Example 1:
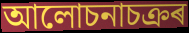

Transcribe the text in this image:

আলোচনাচক্ৰৰ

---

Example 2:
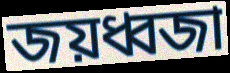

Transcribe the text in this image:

জয়ধ্বজা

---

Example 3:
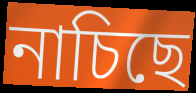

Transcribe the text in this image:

নাচিছে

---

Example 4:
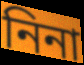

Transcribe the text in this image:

নিনা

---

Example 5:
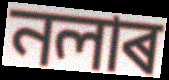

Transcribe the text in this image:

নলাৰ